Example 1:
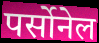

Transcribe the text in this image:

पर्सोनेल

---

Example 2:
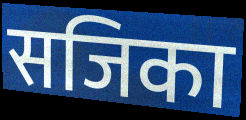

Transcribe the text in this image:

सजिका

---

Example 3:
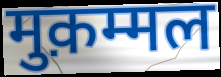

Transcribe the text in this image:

मुक़म्मल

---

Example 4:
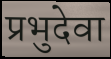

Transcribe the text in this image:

प्रभुदेवा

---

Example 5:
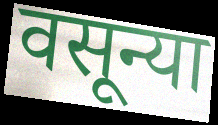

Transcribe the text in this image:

वसून्या